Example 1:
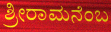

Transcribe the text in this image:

ಶ್ರೀರಾಮನೆಂಬ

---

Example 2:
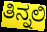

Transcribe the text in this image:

ತಿನ್ನಲಿ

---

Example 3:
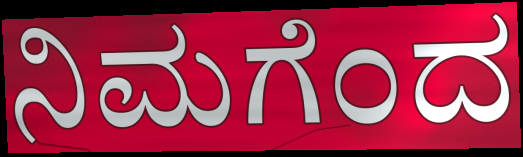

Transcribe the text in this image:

ನಿಮಗೆಂದ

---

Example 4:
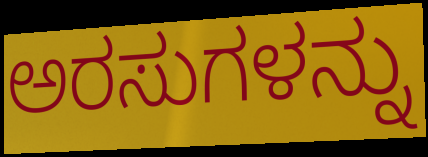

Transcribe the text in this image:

ಅರಸುಗಳನ್ನು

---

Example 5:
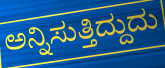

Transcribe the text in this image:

ಅನ್ನಿಸುತ್ತಿದ್ದುದು